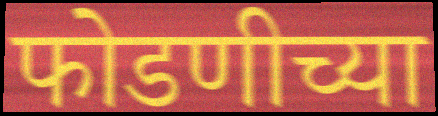
फोडणीच्या